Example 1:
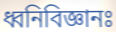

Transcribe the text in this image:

ধ্বনিবিজ্ঞানঃ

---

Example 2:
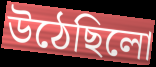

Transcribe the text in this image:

উঠেছিলো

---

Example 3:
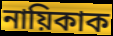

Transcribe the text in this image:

নায়িকাক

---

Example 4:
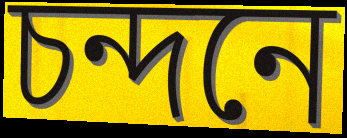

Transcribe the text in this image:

চন্দনে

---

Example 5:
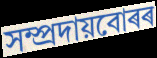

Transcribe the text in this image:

সম্প্ৰদায়বোৰৰ